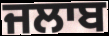
ਜਲਾਬ